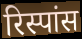
रिस्पांस